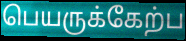
பெயருக்கேற்ப